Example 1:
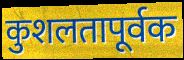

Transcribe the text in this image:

कुशलतापूर्वक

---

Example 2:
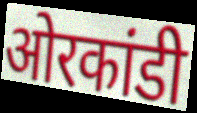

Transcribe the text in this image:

ओरकांडी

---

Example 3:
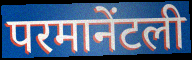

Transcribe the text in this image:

परमानेंटली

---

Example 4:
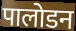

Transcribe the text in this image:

पालोडन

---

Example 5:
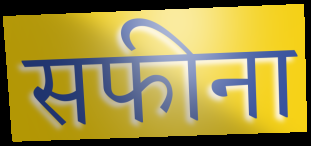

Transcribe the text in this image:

सफीना